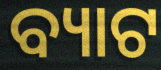
ବ୍ୟାଟ